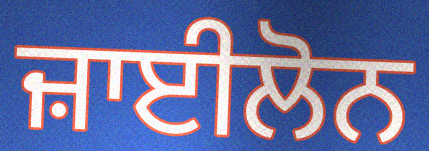
ਜ਼ਾਈਲੋਨ